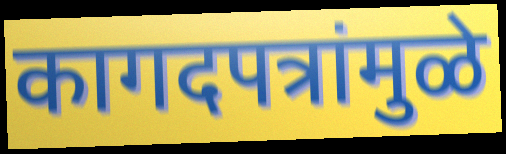
कागदपत्रांमुळे